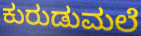
ಕುರುಡುಮಲೆ